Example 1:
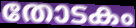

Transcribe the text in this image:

തോടകം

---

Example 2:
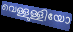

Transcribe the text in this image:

വെള്ളുള്ളിയോ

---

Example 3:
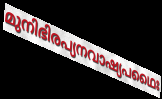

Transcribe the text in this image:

മുനിഭിരപ്യനവാഷ്യപഥൈഃ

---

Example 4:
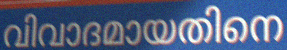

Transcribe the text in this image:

വിവാദമായതിനെ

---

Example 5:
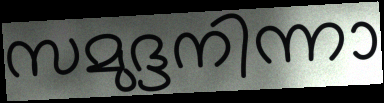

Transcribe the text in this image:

സമുദ്ദനിന്നാ